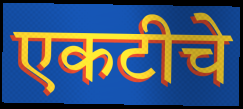
एकटीचे